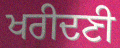
ਖਰੀਦਣੀ